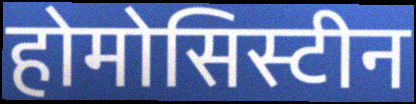
होमोसिस्टीन